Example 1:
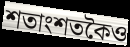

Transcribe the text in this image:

শতাংশতকৈও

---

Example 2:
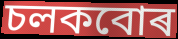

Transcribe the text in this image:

চলকবোৰ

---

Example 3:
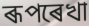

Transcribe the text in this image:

ৰূপৰেখা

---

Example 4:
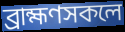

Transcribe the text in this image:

ব্ৰাহ্মণসকলে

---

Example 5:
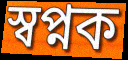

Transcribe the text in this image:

স্বপ্নক